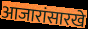
आजारांसारखे